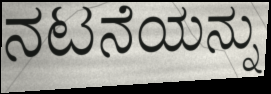
ನಟನೆಯನ್ನು